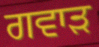
ਗਵਾੜ